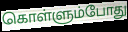
கொள்ளும்போது